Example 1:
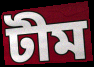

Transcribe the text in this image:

টীম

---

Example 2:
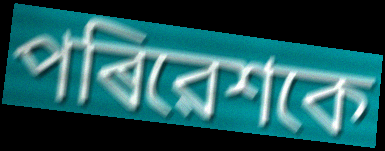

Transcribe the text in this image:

পৰিৱেশকে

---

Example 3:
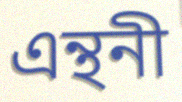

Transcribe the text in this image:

এন্থনী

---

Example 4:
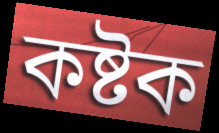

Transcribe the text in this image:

কষ্টক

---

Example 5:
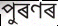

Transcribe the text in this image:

পুৰণৰ